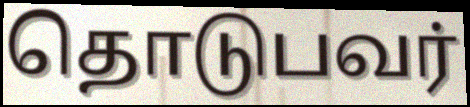
தொடுபவர்